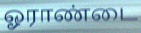
ஓராண்டை